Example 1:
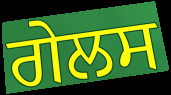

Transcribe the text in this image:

ਗੇਲਸ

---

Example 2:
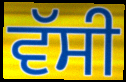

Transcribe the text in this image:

ਵੱਸੀ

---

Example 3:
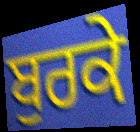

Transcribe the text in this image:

ਬੁਰਕੇ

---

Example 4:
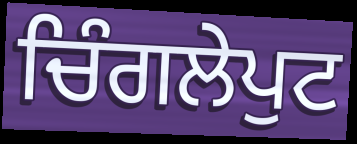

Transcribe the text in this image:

ਚਿੰਗਲੇਪੁਟ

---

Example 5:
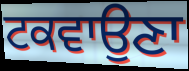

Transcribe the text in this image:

ਟਕਵਾਉਣਾ